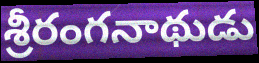
శ్రీరంగనాథుడు